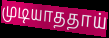
முடியாததாய்